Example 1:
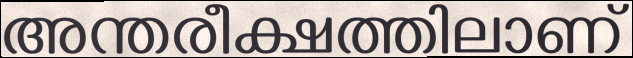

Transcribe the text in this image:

അന്തരീക്ഷത്തിലാണ്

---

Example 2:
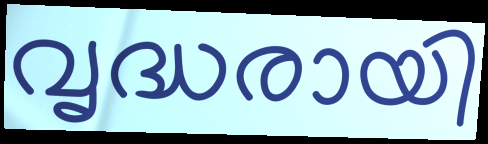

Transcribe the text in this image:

വൃദ്ധരായി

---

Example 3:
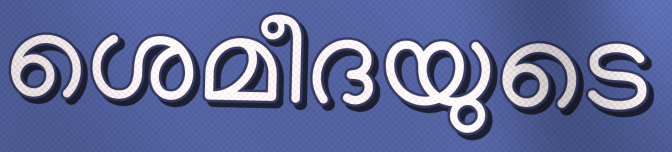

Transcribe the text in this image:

ശെമീദയുടെ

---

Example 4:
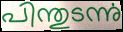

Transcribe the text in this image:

പിന്തുടൎന്നു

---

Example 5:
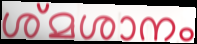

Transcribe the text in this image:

ശ്മശാനം